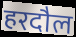
हरदौल